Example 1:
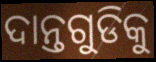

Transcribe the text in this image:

ଦାନ୍ତଗୁଡିକୁ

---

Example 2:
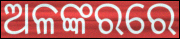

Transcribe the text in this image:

ଅଳଙ୍କରରେ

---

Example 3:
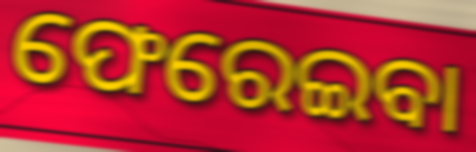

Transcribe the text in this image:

ଫେରେଇବା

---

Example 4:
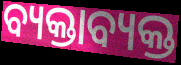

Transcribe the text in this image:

ବ୍ୟକ୍ତାବ୍ୟକ୍ତ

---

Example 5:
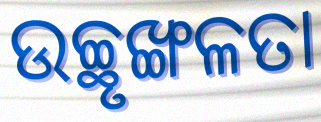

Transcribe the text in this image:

ଉଚ୍ଛୃଙ୍ଖଳତା